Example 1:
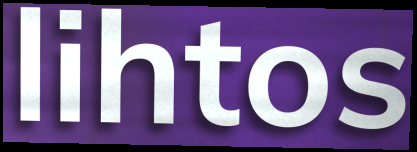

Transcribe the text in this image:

lihtos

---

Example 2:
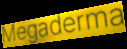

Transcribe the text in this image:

Megaderma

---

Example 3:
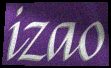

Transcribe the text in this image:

izao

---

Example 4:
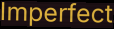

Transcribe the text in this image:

Imperfect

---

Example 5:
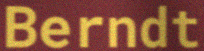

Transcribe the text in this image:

Berndt